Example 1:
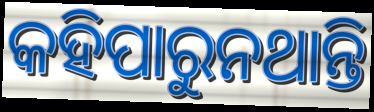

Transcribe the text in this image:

କହିପାରୁନଥାନ୍ତି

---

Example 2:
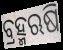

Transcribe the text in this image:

ବ୍ରହ୍ମଋଷି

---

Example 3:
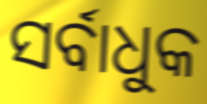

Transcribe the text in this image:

ସର୍ବାଧୁକ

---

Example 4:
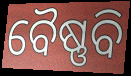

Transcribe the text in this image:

ବୈଷ୍ଣବି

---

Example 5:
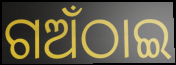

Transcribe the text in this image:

ଗଅଁଠାଇ